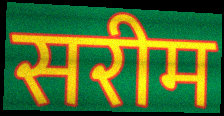
सरीम